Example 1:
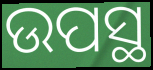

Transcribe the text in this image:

ଉପସ୍ଥ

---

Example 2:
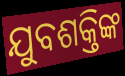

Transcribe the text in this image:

ଯୁବଶକ୍ତିଙ୍କ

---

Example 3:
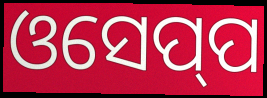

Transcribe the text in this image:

ଓସେପ୍‍ପ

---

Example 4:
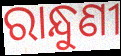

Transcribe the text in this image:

ରାନ୍ଧୁଣୀ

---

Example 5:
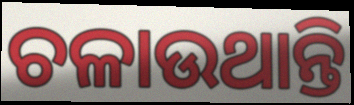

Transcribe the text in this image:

ଚଳାଉଥାନ୍ତି